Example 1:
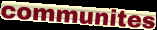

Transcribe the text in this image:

communites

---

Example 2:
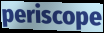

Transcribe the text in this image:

periscope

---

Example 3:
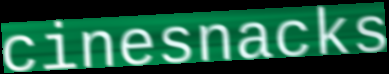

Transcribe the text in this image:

cinesnacks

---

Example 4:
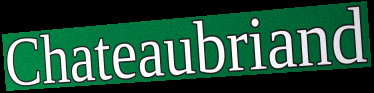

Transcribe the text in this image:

Chateaubriand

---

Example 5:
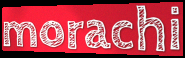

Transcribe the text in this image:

morachi